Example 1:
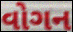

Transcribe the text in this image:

વોગન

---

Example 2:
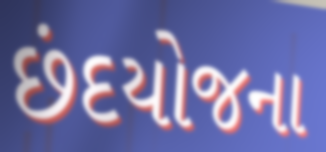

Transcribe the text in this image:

છંદયોજના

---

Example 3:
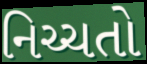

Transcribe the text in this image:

નિચ્ચતો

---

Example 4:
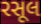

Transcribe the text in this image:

રસૂલ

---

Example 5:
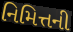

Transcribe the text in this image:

નિમિત્તની